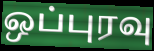
ஒப்புரவு